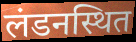
लंडनस्थित